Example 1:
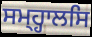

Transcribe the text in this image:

ਸਮ੍ਹ੍ਹਾਲਸਿ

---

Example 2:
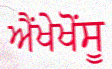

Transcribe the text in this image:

ਐਂਖੇਖੋਂਸੂ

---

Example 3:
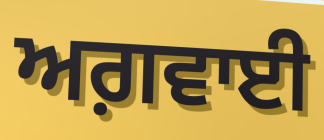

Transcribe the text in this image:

ਅਗ਼ਵਾਈ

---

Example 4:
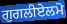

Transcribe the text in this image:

ਗੁਗਲੀਏਲਮੋ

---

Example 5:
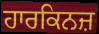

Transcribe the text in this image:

ਹਾਰਕਿਨਜ਼